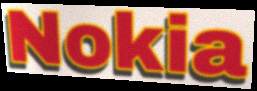
Nokia